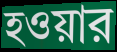
হওয়ার